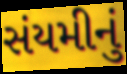
સંયમીનું